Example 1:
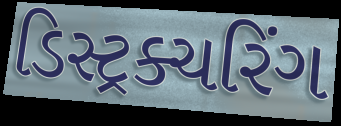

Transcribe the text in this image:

ડિસ્ટ્રક્ચરિંગ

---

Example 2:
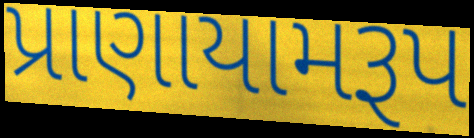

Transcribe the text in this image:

પ્રાણાયામરૂપ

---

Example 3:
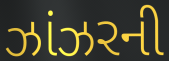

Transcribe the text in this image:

ઝાંઝરની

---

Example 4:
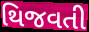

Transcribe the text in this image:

થિજવતી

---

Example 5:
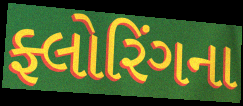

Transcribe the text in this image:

ફ્લોરિંગના